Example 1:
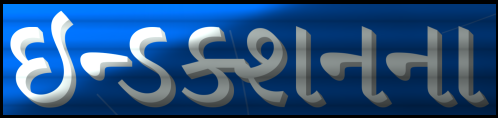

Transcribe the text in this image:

ઇન્ડક્શનના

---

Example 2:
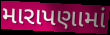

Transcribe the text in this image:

મારાપણામાં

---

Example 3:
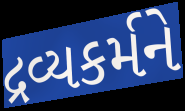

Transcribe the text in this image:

દ્રવ્યકર્મને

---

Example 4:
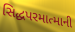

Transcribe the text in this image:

સિદ્ધપરમાત્માની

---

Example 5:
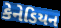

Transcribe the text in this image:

કેનેડિયન